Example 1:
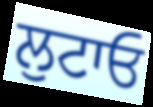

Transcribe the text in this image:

ਲੁਟਾਓ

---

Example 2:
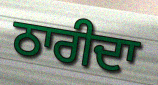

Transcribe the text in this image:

ਠਾਰੀਦਾ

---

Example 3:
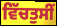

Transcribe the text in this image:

ਵਿੱਚਤੁਸੀਂ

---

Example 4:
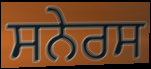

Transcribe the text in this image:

ਸਨੇਰਸ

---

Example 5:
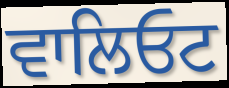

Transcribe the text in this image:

ਵਾਲਿਓਟ